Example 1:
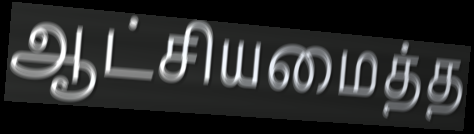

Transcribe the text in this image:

ஆட்சியமைத்த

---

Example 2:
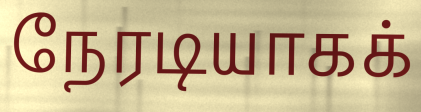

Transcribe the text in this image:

நேரடியாகக்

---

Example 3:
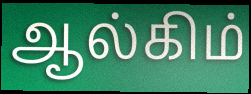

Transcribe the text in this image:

ஆல்கிம்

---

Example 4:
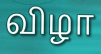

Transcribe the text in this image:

விழா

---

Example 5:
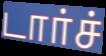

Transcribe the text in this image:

டார்ச்